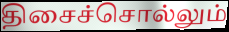
திசைச்சொல்லும்